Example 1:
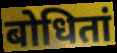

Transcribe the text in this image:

बोधितां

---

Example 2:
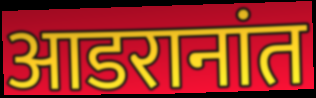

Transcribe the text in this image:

आडरानांत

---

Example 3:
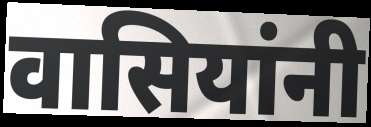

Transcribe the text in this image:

वासियांनी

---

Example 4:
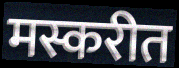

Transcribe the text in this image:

मस्करीत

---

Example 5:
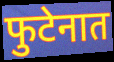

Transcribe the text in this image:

फुटेनात